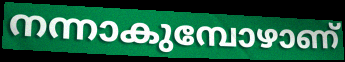
നന്നാകുമ്പോഴാണ്